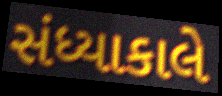
સંધ્યાકાલે